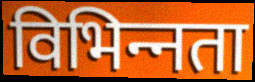
विभिन्‍नता